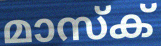
മാസ്ക്